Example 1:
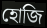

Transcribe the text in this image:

হোজি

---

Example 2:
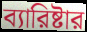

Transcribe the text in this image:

ব্যারিষ্টার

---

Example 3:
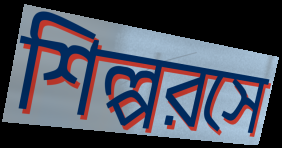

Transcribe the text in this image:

শিল্পরসে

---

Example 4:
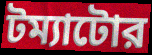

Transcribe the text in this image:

টম্যাটোর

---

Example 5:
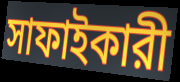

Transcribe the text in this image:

সাফাইকারী